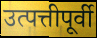
उत्पत्तीपूर्वी